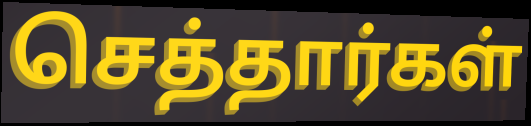
செத்தார்கள்